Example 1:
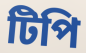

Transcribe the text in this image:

টিপি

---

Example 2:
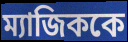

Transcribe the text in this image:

ম্যাজিককে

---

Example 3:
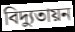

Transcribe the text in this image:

বিদ্যুতায়ন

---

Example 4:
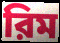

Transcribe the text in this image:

রিম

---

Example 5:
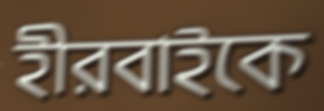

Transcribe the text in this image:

হীরবাইকে